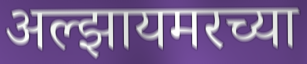
अल्झायमरच्या